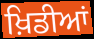
ਖ਼ਿਡੀਆਂ